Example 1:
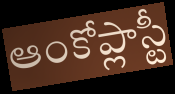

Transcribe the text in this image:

ఆంకోప్లాస్టీ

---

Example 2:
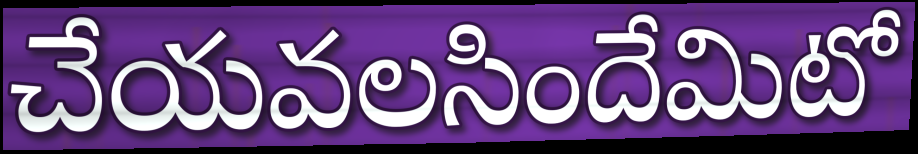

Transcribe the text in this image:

చేయవలసిందేమిటో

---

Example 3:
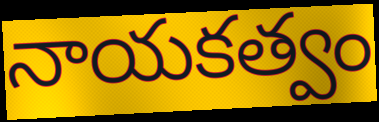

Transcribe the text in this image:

నాయకత్వం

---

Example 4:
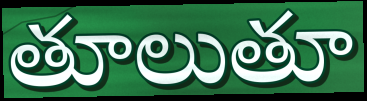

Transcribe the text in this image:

తూలుతూ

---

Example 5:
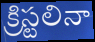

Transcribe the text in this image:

క్రిస్టలినా